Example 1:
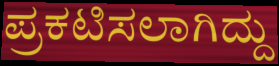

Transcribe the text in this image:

ಪ್ರಕಟಿಸಲಾಗಿದ್ದು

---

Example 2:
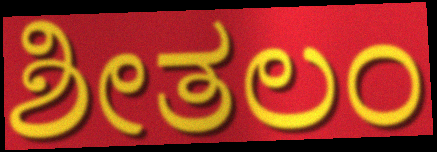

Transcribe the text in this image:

ಶೀತಲಂ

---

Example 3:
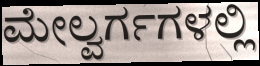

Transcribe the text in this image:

ಮೇಲ್ವರ್ಗಗಳಲ್ಲಿ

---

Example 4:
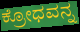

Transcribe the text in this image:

ಕ್ರೋಧವನ್ನ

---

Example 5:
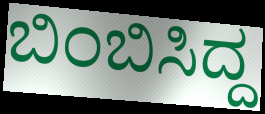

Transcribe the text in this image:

ಬಿಂಬಿಸಿದ್ದ